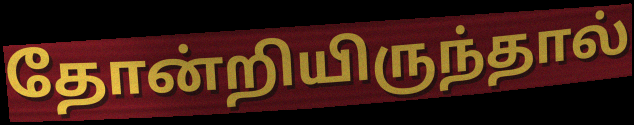
தோன்றியிருந்தால்